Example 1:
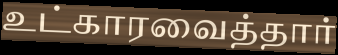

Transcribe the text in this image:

உட்காரவைத்தார்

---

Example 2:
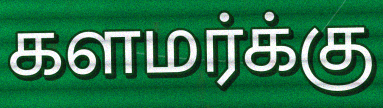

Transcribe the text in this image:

களமர்க்கு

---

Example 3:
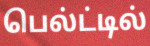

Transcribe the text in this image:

பெல்ட்டில்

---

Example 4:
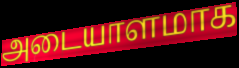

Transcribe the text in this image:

அடையாளமாக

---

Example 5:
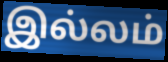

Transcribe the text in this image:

இல்லம்